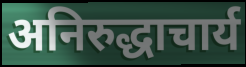
अनिरुद्धाचार्य